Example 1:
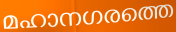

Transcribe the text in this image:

മഹാനഗരത്തെ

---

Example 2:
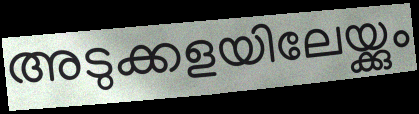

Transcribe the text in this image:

അടുക്കളയിലേയ്ക്കും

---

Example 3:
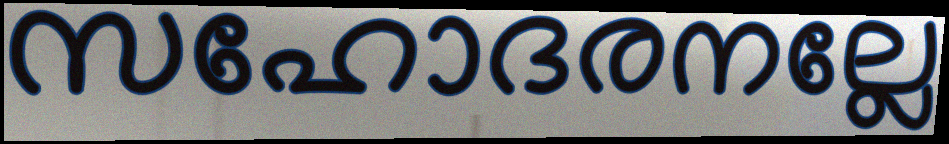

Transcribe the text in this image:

സഹോദരനല്ലേ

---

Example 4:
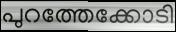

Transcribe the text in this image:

പുറത്തേക്കോടി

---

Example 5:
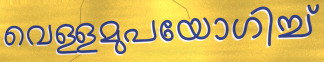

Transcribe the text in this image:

വെള്ളമുപയോഗിച്ച്